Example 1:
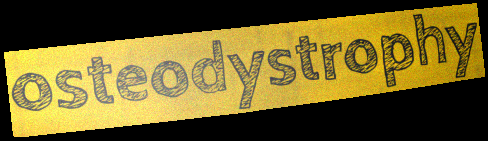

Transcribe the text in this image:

osteodystrophy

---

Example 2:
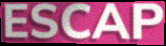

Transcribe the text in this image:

ESCAP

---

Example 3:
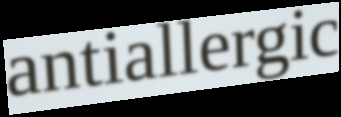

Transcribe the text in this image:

antiallergic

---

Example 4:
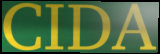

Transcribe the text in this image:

CIDA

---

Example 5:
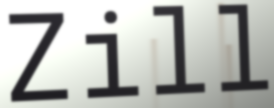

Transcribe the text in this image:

Zill